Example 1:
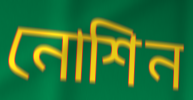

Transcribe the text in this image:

নোশিন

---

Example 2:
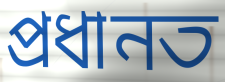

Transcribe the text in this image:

প্রধানত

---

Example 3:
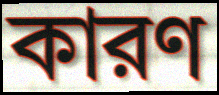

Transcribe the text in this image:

কারণ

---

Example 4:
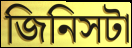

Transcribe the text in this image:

জিনিসটা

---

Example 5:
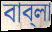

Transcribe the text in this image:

বাব্‌লা